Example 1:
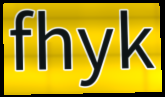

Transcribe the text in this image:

fhyk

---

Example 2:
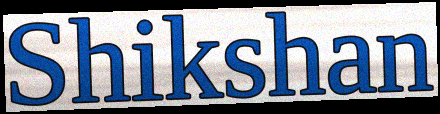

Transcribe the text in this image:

Shikshan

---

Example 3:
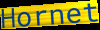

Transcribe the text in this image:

Hornet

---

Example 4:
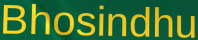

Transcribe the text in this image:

Bhosindhu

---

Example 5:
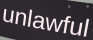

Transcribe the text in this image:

unlawful